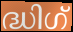
ദ്ധിഗ്